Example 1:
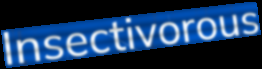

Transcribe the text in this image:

Insectivorous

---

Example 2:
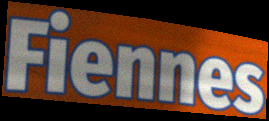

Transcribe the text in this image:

Fiennes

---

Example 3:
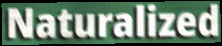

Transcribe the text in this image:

Naturalized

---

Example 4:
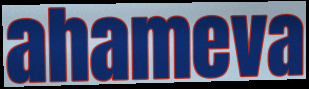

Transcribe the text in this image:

ahameva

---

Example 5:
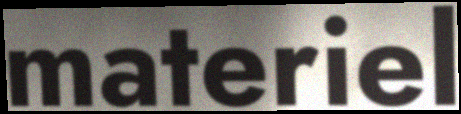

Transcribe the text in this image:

materiel